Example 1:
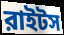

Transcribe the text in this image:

রাইটস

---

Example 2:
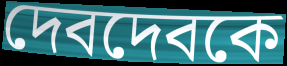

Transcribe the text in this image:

দেবদেবকে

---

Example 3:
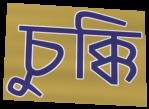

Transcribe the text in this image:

চুক্কি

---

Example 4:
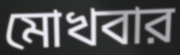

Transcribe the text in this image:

মোখবার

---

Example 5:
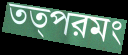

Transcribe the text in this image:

তত্পরমং